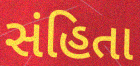
સંહિતા